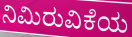
ನಿಮಿರುವಿಕೆಯ